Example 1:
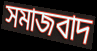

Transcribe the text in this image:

সমাজবাদ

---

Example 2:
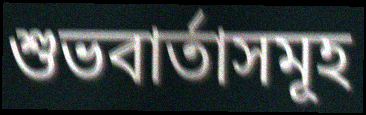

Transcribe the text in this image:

শুভবাৰ্তাসমূহ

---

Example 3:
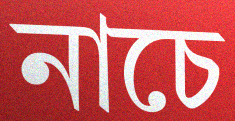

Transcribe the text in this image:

নাচে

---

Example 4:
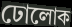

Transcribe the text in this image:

ঢোলোক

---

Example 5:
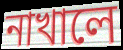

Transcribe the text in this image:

নাখালে